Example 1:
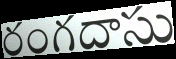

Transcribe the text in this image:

రంగదాసు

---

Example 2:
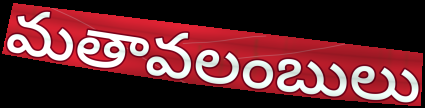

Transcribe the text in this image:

మతావలంబులు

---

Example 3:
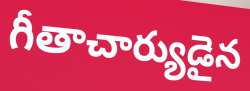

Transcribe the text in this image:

గీతాచార్యుడైన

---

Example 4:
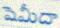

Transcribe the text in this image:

షెమీదా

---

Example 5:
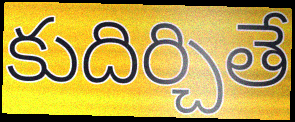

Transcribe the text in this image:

కుదిర్చితే